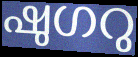
ഷുഗറു